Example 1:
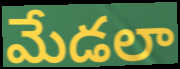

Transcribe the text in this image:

మేడలా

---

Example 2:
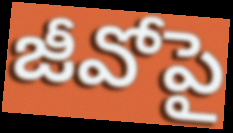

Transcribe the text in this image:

జీవోపై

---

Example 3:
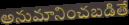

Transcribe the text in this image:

అనుమానించబడితే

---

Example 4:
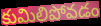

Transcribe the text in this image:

కుమిలిపోవడం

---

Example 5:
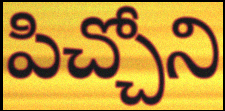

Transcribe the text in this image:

పిచ్చోని